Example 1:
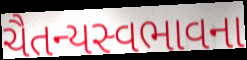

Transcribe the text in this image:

ચૈતન્યસ્વભાવના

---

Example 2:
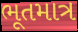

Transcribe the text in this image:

ભૂતમાત્ર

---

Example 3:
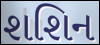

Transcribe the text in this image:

શશિન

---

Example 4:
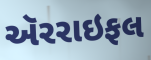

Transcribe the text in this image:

ઍરરાઇફલ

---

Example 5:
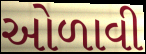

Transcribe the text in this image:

ઓળાવી